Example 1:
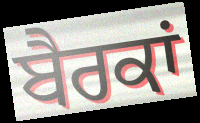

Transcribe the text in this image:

ਬੈਰਕਾਂ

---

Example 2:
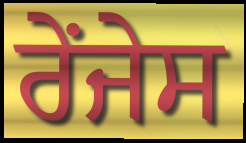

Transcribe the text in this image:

ਰੇਂਜੇਸ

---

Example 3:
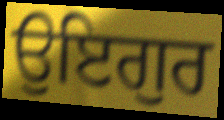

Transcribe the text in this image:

ਉਇਗੁਰ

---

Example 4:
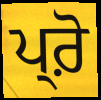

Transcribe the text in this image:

ਪ੍ਰ਼ੋ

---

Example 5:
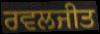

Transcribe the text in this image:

ਰਵਲਜੀਤ